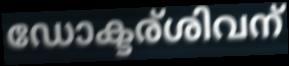
ഡോക്ടര്ശിവന്